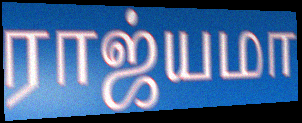
ராஜ்யமா